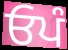
ਓਪੰ